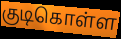
குடிகொள்ள